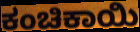
ಕಂಚಿಕಾಯಿ